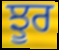
ਝੂਰ